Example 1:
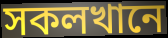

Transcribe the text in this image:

সকলখানে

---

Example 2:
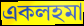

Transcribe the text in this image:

একলহমা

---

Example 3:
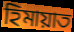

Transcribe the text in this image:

হিমায়াত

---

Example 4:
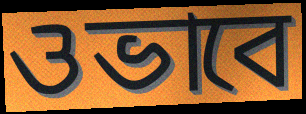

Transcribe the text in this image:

ওভাবে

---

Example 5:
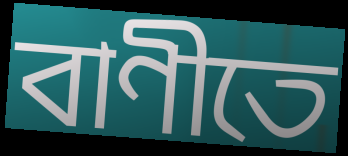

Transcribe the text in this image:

বাণীতে